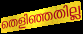
തെളിഞ്ഞതില്ല